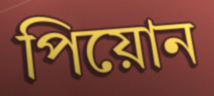
পিয়োন